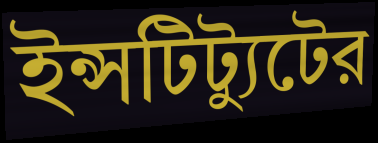
ইন্সটিট্যুটের